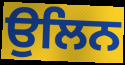
ਉਲਿਨ